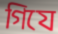
গিযে